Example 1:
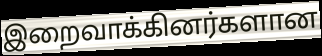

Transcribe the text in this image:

இறைவாக்கினர்களான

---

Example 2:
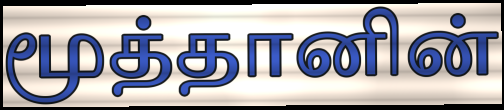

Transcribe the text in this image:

மூத்தானின்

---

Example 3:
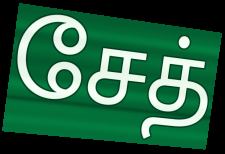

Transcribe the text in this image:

சேத்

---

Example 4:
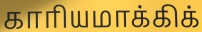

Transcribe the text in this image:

காரியமாக்கிக்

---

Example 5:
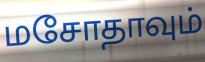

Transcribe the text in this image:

மசோதாவும்